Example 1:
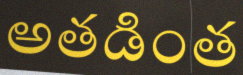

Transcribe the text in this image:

అతడింత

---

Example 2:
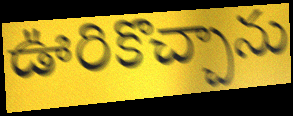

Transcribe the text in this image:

ఊరికొచ్చాను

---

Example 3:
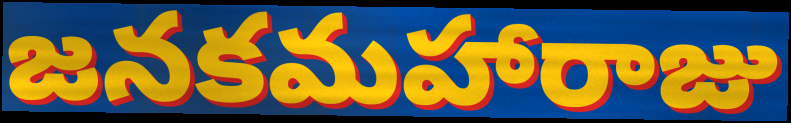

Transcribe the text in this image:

జనకమహారాజు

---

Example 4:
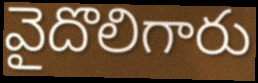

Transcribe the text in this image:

వైదొలిగారు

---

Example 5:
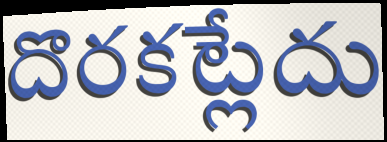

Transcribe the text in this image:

దొరకట్లేదు